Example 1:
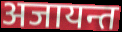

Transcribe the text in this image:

अजायन्त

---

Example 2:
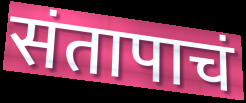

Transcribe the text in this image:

संतापाचं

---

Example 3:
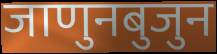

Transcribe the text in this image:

जाणुनबुजुन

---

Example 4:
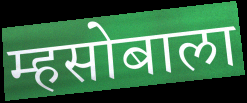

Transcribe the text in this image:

म्हसोबाला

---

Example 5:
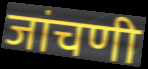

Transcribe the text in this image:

जांचणी